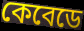
কেবেডে